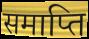
समाप्‍ति